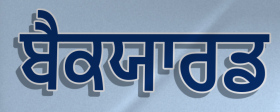
ਬੈਕਯਾਰਡ